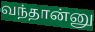
வந்தான்னு